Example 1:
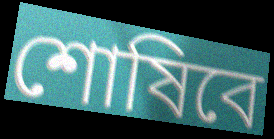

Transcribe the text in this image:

শোষিবে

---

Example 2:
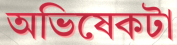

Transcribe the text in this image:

অভিষেকটা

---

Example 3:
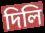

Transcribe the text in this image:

দিলি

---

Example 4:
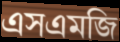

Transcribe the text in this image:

এসএমজি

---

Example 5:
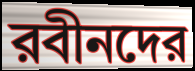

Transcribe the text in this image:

রবীনদের